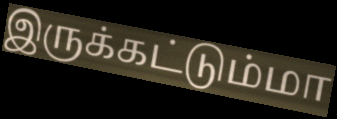
இருக்கட்டும்மா